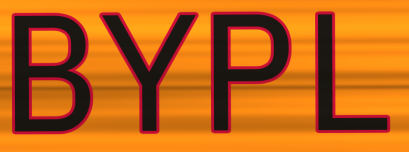
BYPL